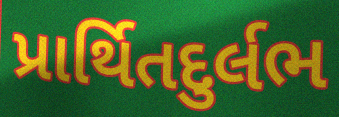
પ્રાર્થિતદુર્લભ